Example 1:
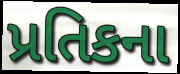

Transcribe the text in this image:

પ્રતિકના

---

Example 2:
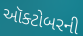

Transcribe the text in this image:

ઑક્ટોબરની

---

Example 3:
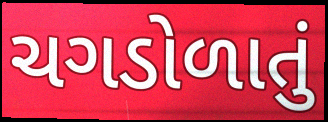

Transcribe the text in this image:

ચગડોળાતું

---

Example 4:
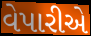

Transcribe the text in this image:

વેપારીએ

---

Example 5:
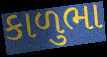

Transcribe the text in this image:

કાળુભા